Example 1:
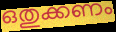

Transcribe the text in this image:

ഒതുക്കണം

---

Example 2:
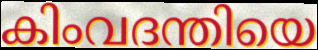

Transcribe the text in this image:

കിംവദന്തിയെ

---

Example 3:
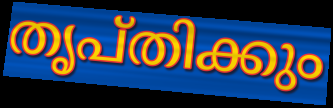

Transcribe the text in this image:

തൃപ്തിക്കും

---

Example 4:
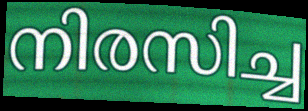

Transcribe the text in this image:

നിരസിച്ച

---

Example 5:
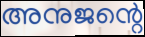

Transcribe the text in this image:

അനുജന്റെ